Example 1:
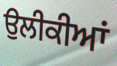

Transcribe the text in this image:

ਉਲੀਕੀਆਂ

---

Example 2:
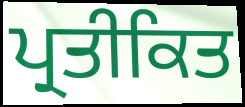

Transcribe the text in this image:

ਪ੍ਰਤੀਕਿਤ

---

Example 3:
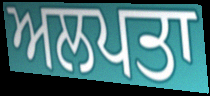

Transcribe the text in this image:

ਅਲਪਤਾ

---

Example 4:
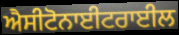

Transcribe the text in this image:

ਐਸੀਟੋਨਾਈਟਰਾਈਲ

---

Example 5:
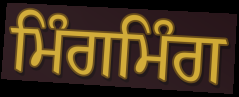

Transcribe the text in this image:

ਮਿੰਗਮਿੰਗ